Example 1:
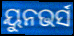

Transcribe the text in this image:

ୟୁନଭର୍ସ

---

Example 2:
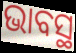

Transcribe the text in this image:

ଭାବସ୍ଥ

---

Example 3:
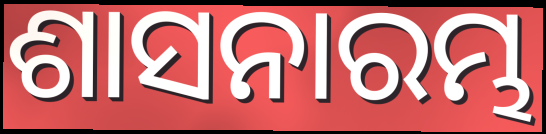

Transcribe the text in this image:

ଶାସନାରମ୍ଭ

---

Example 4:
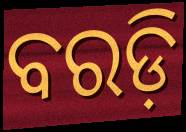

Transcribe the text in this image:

ବରଡ଼ି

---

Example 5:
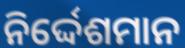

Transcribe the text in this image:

ନିର୍ଦ୍ଦେଶମାନ